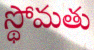
స్థోమతు